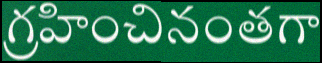
గ్రహించినంతగా